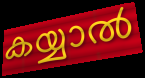
കയ്യാൽ